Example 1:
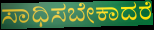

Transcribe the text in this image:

ಸಾಧಿಸಬೇಕಾದರೆ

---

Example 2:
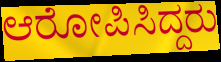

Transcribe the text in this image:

ಆರೋಪಿಸಿದ್ದರು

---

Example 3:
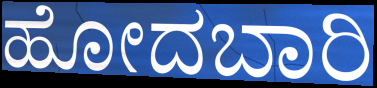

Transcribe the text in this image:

ಹೋದಬಾರಿ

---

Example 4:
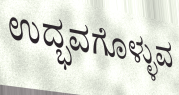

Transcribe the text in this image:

ಉದ್ಭವಗೊಳ್ಳುವ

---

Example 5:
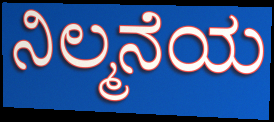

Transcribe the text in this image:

ನಿಲ್ಮನೆಯ